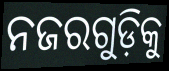
ନଜରଗୁଡ଼ିକୁ